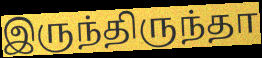
இருந்திருந்தா